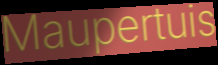
Maupertuis